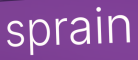
sprain